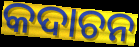
କଦାଚନ